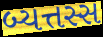
બ્યત્તસ્સ